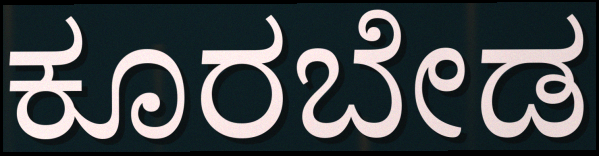
ಕೂರಬೇಡ